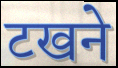
टखने